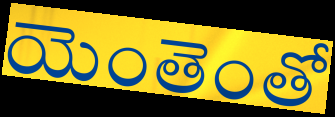
యెంతెంతో